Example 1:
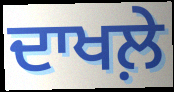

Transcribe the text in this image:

ਦਾਖਲ਼ੇ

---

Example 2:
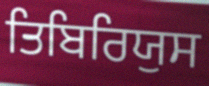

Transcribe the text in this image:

ਤਿਬਿਰਿਯੁਸ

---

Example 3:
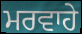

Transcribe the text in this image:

ਮਰਵਾਹੇ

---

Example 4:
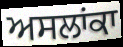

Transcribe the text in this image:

ਅਸਲਾਂਕਾ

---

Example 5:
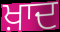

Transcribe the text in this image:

ਖ਼ਾਦ